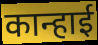
कान्हाई